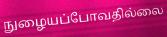
நுழையப்போவதில்லை